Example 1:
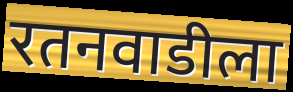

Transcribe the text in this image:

रतनवाडीला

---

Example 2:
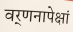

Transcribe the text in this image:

वर्णनापेक्षां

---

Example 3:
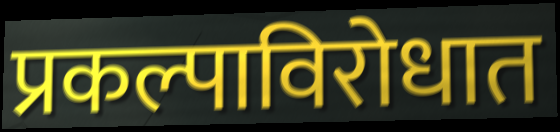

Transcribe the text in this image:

प्रकल्पाविरोधात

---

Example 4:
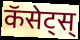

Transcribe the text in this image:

कॅसेट्स्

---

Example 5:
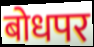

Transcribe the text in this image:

बोधपर